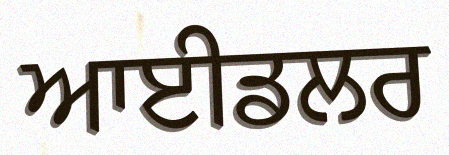
ਆਈਡਲਰ